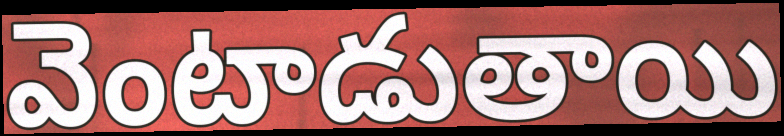
వెంటాడుతాయి